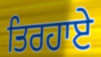
ਤਿਰਹਾਏ